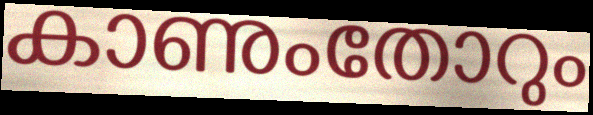
കാണുംതോറും